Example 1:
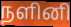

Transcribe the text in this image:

நளினி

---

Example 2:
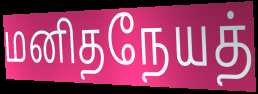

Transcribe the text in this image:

மனிதநேயத்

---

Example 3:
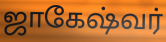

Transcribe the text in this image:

ஜாகேஷ்வர்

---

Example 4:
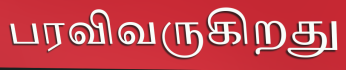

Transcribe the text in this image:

பரவிவருகிறது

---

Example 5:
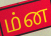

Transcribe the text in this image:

ம்ன